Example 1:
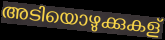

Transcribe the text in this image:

അടിയൊഴുക്കുകള്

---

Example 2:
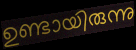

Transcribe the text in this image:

ഉണ്ടായിരുന്നു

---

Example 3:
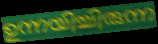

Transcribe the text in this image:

ഉന്നയിച്ചിരുന്ന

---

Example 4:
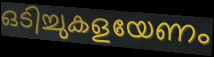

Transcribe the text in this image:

ഒടിച്ചുകളയേണം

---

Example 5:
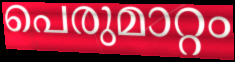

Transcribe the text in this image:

പെരുമാറ്റം